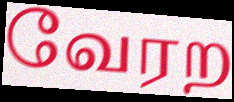
வேரற